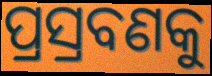
ପ୍ରସ୍ରବଣକୁ